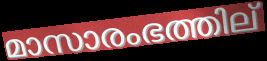
മാസാരംഭത്തില്